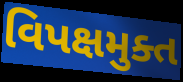
વિપક્ષમુક્ત